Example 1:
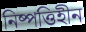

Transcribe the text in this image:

নিষ্পত্তিহীন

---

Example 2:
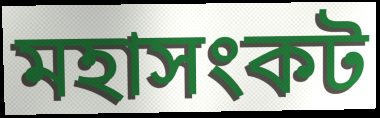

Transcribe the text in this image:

মহাসংকট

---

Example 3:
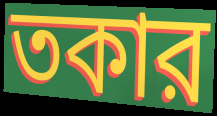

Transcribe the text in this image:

তকার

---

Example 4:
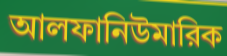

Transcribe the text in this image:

আলফানিউমারিক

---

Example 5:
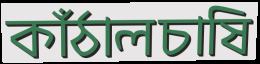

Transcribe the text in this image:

কাঁঠালচাষি